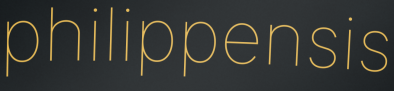
philippensis